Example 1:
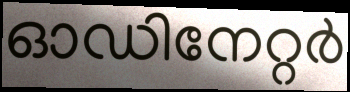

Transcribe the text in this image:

ഓഡിനേറ്റർ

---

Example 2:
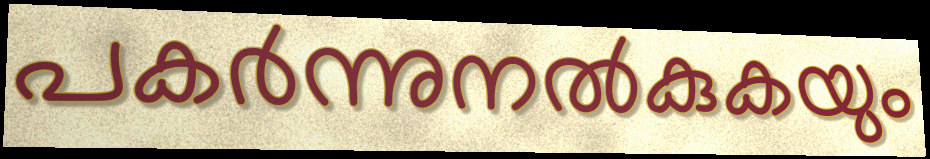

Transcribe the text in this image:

പകർന്നുനൽകുകയും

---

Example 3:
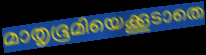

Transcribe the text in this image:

മാതൃഭൂമിയെക്കൂടാതെ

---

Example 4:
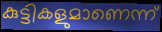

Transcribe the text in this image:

കുട്ടികളുമാണെന്ന്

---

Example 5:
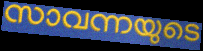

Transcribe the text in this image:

സാവന്നയുടെ